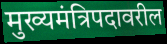
मुख्यमंत्रिपदावरील